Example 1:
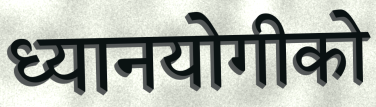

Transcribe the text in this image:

ध्यानयोगीको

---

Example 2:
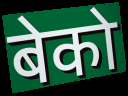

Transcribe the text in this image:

बेको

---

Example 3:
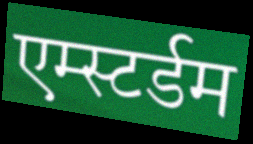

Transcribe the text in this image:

एम्स्टर्डम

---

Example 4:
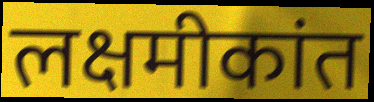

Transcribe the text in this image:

लक्षमीकांत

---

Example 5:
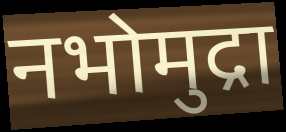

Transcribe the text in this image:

नभोमुद्रा